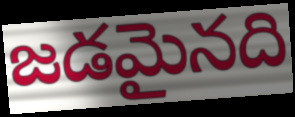
జడమైనది